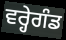
ਵਰ੍ਹੇਗੰਡ